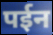
पईन